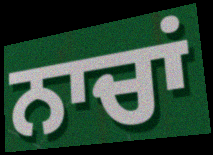
ਨਾਚਾਂ